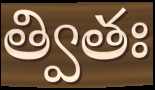
త్వితః